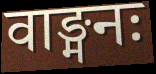
वाङ्मनः